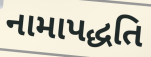
નામાપદ્ધતિ